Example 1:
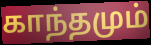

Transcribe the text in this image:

காந்தமும்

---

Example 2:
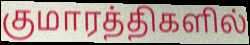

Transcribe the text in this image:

குமாரத்திகளில்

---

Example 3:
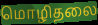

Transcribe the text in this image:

மொழிதலை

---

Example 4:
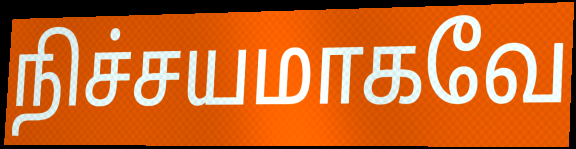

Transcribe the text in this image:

நிச்சயமாகவே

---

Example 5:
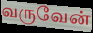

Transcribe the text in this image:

வருவேன்